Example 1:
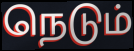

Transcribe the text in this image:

நெடும்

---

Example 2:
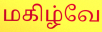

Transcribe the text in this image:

மகிழ்வே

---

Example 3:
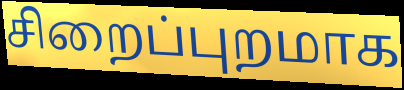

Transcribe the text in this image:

சிறைப்புறமாக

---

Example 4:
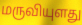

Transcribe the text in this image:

மருவியுளது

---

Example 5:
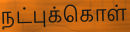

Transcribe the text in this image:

நட்புக்கொள்